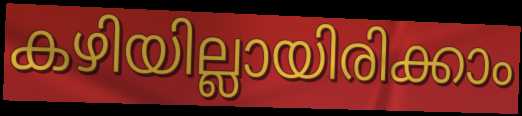
കഴിയില്ലായിരിക്കാം